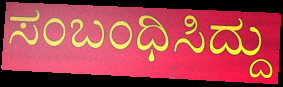
ಸಂಬಂಧಿಸಿದ್ದು